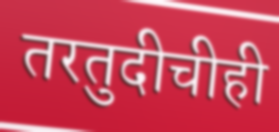
तरतुदीचीही